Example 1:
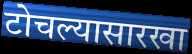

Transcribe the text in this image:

टोचल्यासारखा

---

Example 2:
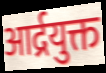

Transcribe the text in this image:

आर्द्रयुक्त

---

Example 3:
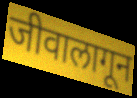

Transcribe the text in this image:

जीवालागून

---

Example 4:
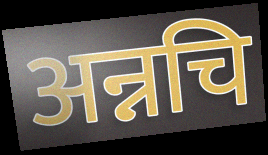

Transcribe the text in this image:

अन्नचि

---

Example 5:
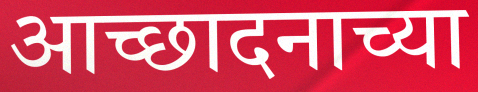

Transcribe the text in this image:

आच्छादनाच्या